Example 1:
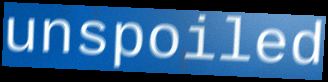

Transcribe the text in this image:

unspoiled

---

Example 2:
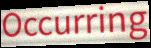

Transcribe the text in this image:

Occurring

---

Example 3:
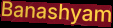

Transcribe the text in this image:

Banashyam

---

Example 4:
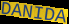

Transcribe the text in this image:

DANIDA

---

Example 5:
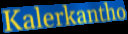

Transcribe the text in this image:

Kalerkantho